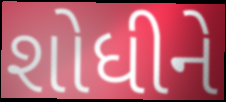
શોધીને